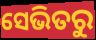
ସେଭିତରୁ